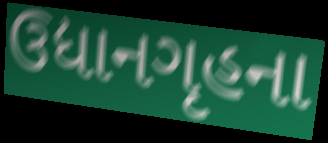
ઉદ્યાનગૃહના